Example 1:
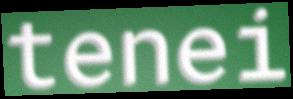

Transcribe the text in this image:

tenei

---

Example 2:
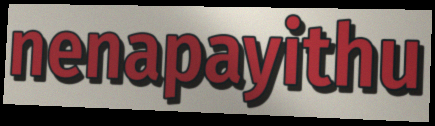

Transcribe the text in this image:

nenapayithu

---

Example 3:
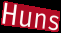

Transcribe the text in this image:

Huns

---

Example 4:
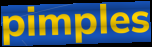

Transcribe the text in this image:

pimples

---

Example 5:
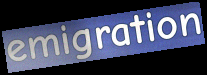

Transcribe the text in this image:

emigration